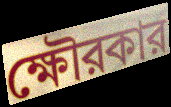
ক্ষৌরকার